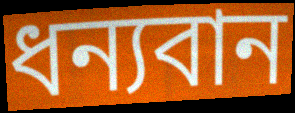
ধন্যবান